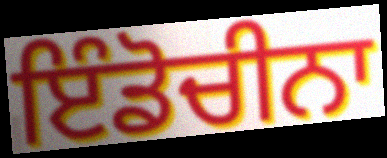
ਇੰਡੋਚੀਨਾ